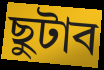
ছুটাব